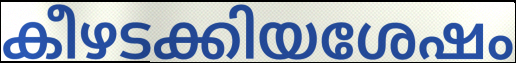
കീഴടക്കിയശേഷം